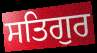
ਸਤਿਗੁਰ